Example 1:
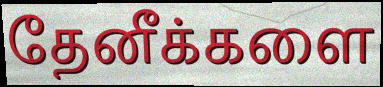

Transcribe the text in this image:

தேனீக்களை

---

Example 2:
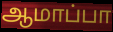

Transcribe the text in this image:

ஆமாப்பா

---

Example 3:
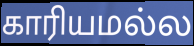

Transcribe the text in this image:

காரியமல்ல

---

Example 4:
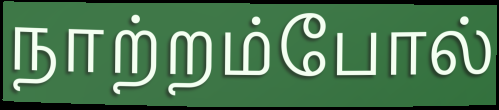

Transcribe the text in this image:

நாற்றம்போல்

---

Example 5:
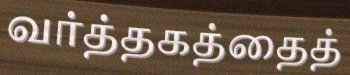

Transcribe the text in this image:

வர்த்தகத்தைத்